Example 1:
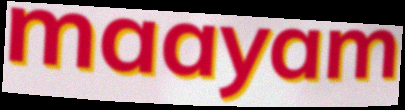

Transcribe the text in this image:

maayam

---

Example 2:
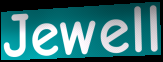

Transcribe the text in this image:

Jewell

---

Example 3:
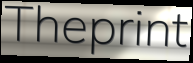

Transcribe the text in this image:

Theprint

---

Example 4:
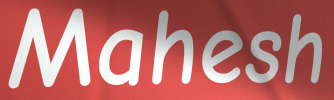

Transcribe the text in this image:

Mahesh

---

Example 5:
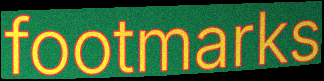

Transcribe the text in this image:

footmarks